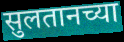
सुलतानच्या